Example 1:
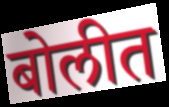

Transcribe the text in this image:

बोलीत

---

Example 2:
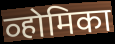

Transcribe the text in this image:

व्होमिका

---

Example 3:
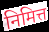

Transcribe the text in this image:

निमित्त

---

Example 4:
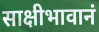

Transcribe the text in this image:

साक्षीभावानं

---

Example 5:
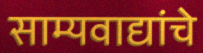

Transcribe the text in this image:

साम्यवाद्यांचे